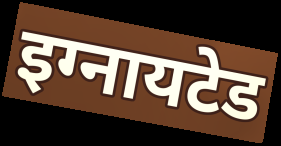
इग्नायटेड